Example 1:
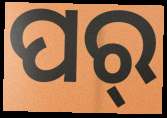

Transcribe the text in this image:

ପର୍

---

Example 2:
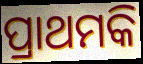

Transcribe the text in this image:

ପ୍ରାଥମକି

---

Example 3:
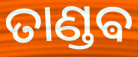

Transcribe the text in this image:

ତାଣ୍ଡଵ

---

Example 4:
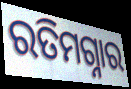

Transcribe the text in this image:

ରତିମଗ୍ନାର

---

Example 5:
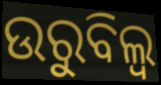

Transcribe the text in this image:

ଉରୁବିଲ୍ୱ